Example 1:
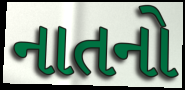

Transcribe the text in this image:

નાતનો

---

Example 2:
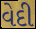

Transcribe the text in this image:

વેદી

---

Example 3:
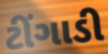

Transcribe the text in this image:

ટીંગાડી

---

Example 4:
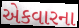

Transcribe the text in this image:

એકવારના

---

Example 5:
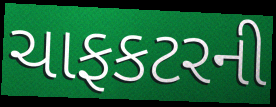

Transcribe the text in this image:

ચાફકટરની